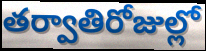
తర్వాతిరోజుల్లో